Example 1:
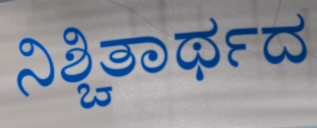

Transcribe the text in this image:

ನಿಶ್ಚಿತಾರ್ಥದ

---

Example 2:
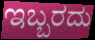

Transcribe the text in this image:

ಇಬ್ಬರದು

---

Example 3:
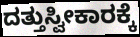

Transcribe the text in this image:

ದತ್ತುಸ್ವೀಕಾರಕ್ಕೆ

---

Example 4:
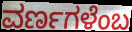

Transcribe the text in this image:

ವರ್ಣಗಳೆಂಬ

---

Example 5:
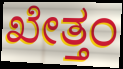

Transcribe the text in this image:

ಖೇತ್ತಂ